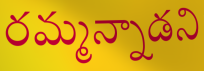
రమ్మన్నాడని